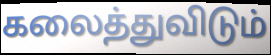
கலைத்துவிடும்